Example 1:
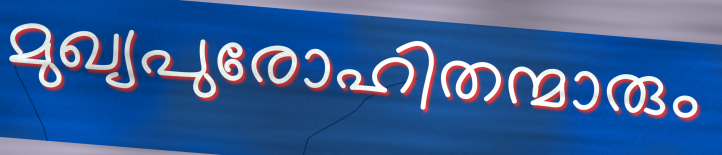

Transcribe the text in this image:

മുഖ്യപുരോഹിതന്മാരും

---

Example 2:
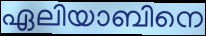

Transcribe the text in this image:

ഏലിയാബിനെ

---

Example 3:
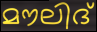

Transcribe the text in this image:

മൗലിദ്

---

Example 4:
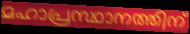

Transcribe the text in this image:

മഹാപ്രസ്ഥാനത്തിന്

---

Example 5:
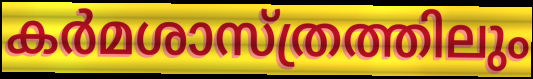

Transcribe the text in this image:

കർമശാസ്ത്രത്തിലും